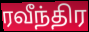
ரவீந்திர